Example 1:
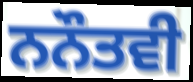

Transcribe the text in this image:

ਨਨੌਤਵੀ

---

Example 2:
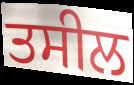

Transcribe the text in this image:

ਤਸੀਲ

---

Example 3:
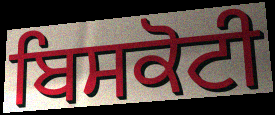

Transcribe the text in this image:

ਬਿਸਕੋਟੀ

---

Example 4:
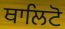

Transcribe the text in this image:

ਥਾਲਿਟੋ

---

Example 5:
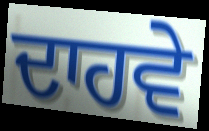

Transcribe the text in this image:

ਦਾਹਵੇ